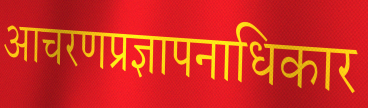
आचरणप्रज्ञापनाधिकार